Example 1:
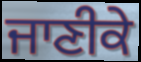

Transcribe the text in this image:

ਜਾਣੀਕੇ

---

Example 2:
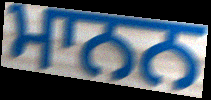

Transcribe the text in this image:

ਮਾਨਨ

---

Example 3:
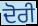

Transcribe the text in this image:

ਦੋਰੀ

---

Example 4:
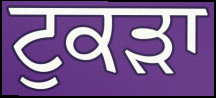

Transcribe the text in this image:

ਟੁਕਡ਼ਾ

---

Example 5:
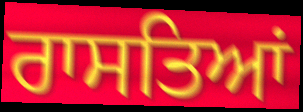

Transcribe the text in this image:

ਰਾਸਤਿਆਂ